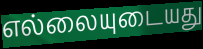
எல்லையுடையது